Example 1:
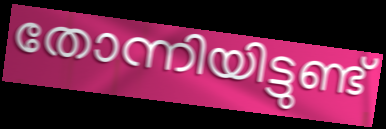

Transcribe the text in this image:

തോന്നിയിട്ടുണ്ട്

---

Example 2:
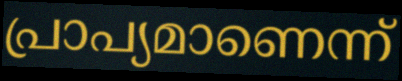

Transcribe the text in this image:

പ്രാപ്യമാണെന്ന്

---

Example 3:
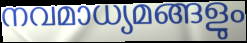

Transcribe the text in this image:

നവമാധ്യമങ്ങളും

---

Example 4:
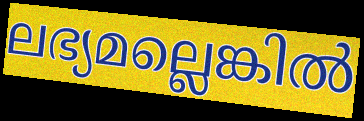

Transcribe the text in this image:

ലഭ്യമല്ലെങ്കിൽ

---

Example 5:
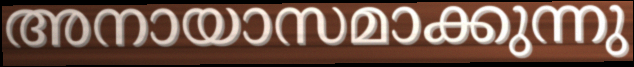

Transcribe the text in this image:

അനായാസമാക്കുന്നു